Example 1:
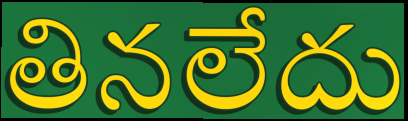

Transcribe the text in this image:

తినలేదు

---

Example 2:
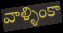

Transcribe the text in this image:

వాళ్ళింకా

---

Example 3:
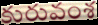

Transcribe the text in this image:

కురువంశ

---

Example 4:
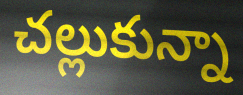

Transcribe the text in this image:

చల్లుకున్నా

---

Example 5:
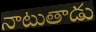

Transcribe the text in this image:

నాటుతాడు